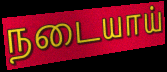
நடையாய்